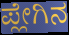
ಪ್ಲೇಗಿನ